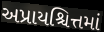
અપ્રાયશ્ચિત્તમાં